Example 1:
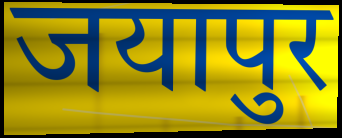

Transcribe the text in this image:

जयापुर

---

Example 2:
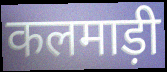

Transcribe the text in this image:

कलमाड़ी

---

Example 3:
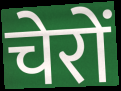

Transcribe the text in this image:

चेरों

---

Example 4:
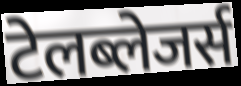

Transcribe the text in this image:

टेलब्लेजर्स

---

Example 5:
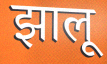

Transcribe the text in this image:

झालू